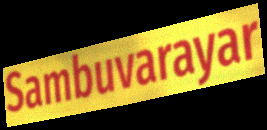
Sambuvarayar